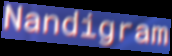
Nandigram